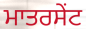
ਮਾਤਰਸੇਂਟ